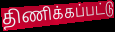
திணிக்கப்பட்டு